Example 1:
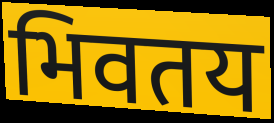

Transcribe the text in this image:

भिवतय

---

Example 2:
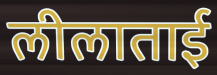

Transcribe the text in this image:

लीलाताई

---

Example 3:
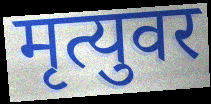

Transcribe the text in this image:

मृत्युवर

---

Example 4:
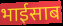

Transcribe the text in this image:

भाईसाब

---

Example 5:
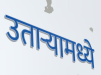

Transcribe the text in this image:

उताऱ्यामध्ये